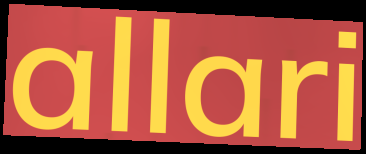
allari